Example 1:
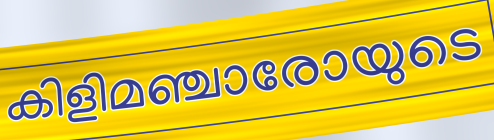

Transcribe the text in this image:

കിളിമഞ്ചാരോയുടെ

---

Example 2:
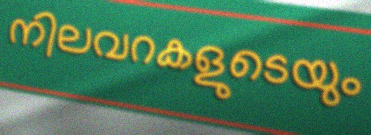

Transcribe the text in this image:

നിലവറകളുടെയും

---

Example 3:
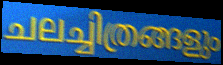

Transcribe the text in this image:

ചലച്ചിത്രങ്ങളും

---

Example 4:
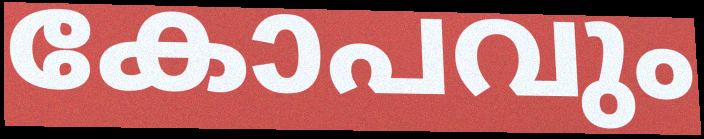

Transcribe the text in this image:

കോപവും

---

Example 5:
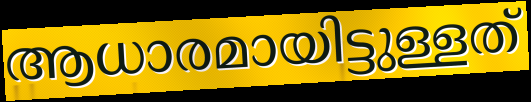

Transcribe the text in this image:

ആധാരമായിട്ടുള്ളത്